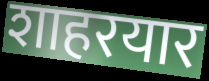
शाहरयार